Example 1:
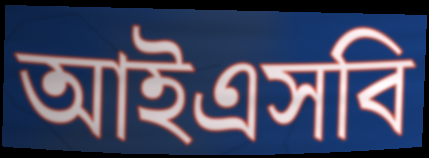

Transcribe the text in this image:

আইএসবি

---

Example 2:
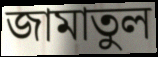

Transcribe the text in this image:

জামাতুল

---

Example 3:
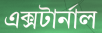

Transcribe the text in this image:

এক্সটার্নাল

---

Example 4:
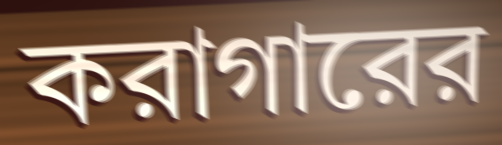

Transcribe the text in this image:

করাগারের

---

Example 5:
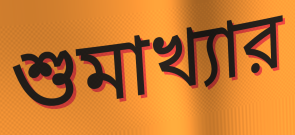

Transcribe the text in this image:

শুমাখ্যার